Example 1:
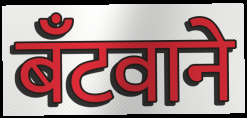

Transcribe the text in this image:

बँटवाने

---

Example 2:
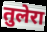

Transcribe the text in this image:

तुलेरा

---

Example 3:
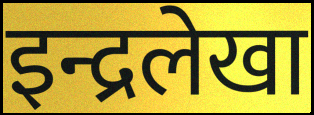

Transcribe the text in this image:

इन्द्रलेखा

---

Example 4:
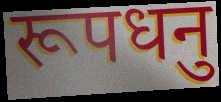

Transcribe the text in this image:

रूपधनु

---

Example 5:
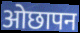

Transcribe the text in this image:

ओछापन